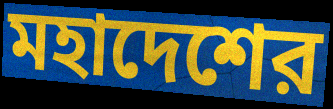
মহাদেশের